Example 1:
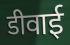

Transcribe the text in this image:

डीवाई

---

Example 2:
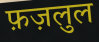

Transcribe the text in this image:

फ़ज़लुल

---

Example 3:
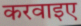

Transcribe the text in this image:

करवाइए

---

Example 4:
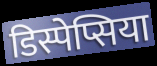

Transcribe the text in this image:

डिस्पेप्सिया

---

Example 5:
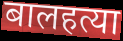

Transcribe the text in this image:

बालहत्या